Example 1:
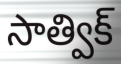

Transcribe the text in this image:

సాత్విక్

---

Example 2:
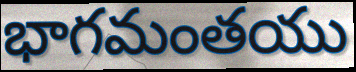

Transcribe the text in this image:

భాగమంతయు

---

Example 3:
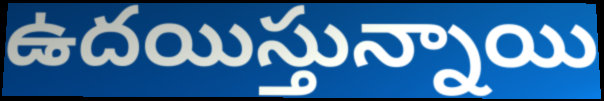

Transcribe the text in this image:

ఉదయిస్తున్నాయి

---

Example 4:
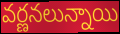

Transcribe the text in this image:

వర్ణనలున్నాయి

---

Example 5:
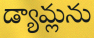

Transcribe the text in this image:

డ్యామ్లను